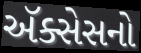
ઍક્સેસનો